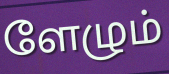
ளேழும்